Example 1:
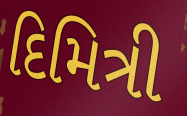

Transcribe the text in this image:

દિમિત્રી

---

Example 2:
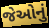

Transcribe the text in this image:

જેઓનું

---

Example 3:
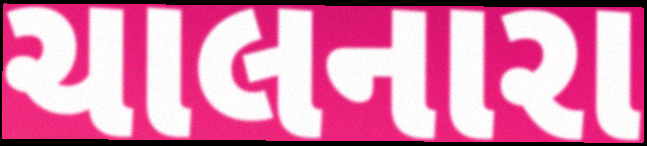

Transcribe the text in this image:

ચાલનારા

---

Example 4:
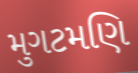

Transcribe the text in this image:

મુગટમણિ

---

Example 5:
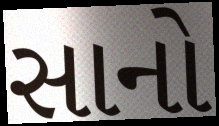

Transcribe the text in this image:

સાનો